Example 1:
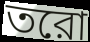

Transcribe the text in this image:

তরো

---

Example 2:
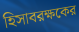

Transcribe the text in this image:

হিসাবরক্ষকের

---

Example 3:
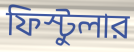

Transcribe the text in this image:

ফিস্টুলার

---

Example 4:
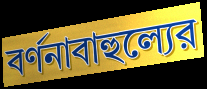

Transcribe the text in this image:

বর্ণনাবাহুল্যের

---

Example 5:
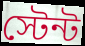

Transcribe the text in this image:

স্টেন্ট